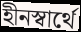
হীনস্বার্থে